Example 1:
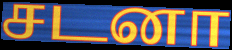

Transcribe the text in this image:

சடனா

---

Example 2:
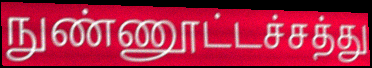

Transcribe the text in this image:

நுண்ணூட்டச்சத்து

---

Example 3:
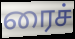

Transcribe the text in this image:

ரைச்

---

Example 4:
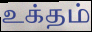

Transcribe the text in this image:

உக்தம்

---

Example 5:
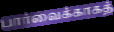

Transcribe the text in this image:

பார்வைக்காகத்